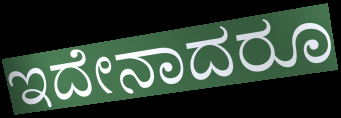
ಇದೇನಾದರೂ